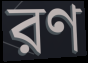
রণ